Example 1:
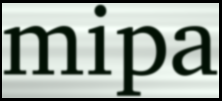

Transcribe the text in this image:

mipa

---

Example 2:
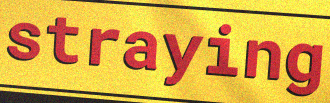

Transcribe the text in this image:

straying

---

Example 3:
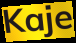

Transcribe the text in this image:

Kaje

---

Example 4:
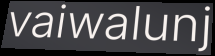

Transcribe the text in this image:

vaiwalunj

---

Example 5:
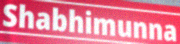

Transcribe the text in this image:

Shabhimunna